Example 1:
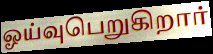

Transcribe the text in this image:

ஓய்வுபெறுகிறார்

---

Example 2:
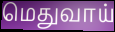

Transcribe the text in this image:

மெதுவாய்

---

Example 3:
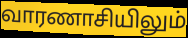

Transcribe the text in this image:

வாரணாசியிலும்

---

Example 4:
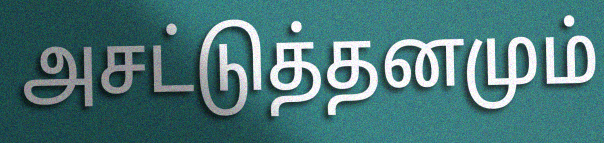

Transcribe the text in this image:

அசட்டுத்தனமும்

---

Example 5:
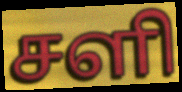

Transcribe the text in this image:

சளி